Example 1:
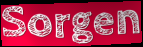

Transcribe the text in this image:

Sorgen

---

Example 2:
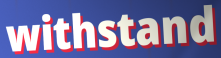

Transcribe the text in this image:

withstand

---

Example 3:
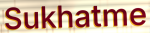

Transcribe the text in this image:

Sukhatme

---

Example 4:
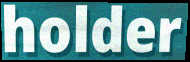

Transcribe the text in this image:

holder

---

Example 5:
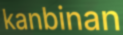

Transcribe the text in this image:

kanbinan